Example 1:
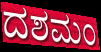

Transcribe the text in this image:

ದಶಮಂ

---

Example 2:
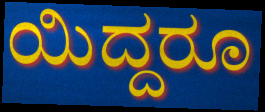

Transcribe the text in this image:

ಯಿದ್ದರೂ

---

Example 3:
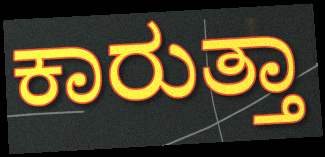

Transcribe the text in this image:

ಕಾರುತ್ತಾ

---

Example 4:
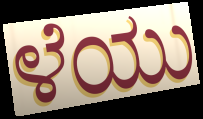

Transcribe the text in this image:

ಳೆಯು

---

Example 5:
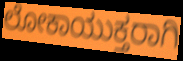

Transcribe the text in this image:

ಲೋಕಾಯುಕ್ತರಾಗಿ